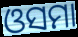
ଓସମା